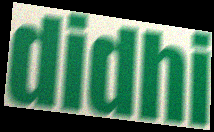
didhi